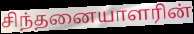
சிந்தனையாளரின்